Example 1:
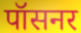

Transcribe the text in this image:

पॉसनर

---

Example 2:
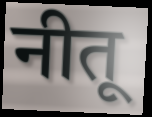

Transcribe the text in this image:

नीतू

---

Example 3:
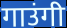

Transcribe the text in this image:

गाउंगी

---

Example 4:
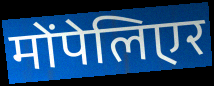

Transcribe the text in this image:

मोंपेलिएर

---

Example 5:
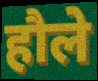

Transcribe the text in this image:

हौले